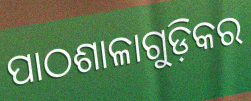
ପାଠଶାଳାଗୁଡ଼ିକର